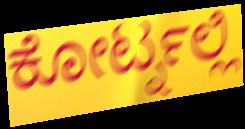
ಕೋರ್ಟ್ನಲ್ಲಿ